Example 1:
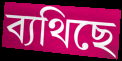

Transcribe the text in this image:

ব্যথিছে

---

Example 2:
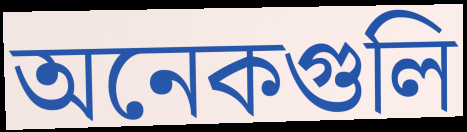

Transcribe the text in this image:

অনেকগুলি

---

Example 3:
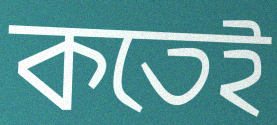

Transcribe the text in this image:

কতেই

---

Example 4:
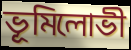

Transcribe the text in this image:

ভূমিলোভী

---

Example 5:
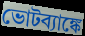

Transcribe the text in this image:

ভোটব্যাঙ্কে